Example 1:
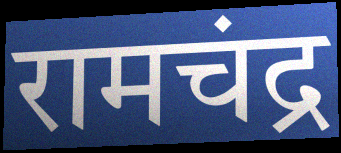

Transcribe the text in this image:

रामचंद्र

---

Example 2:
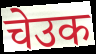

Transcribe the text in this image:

चेउक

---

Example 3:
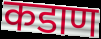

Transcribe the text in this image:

कडाण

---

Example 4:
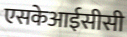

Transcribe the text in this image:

एसकेआईसीसी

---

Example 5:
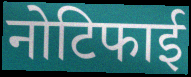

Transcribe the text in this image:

नोटिफाई